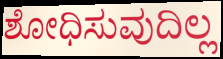
ಶೋಧಿಸುವುದಿಲ್ಲ